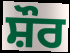
ਸ਼ੌਰ